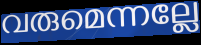
വരുമെന്നല്ലേ